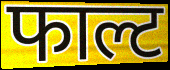
फाल्ट